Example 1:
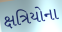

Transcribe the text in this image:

ક્ષત્રિયોના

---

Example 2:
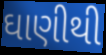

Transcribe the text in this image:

ઘાણીથી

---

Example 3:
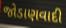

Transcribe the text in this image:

જોડાણવાદી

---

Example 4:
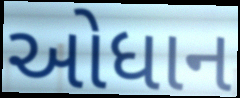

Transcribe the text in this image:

ઓધાન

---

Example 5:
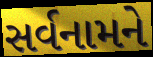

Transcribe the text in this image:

સર્વનામને